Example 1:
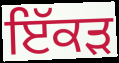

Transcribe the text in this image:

ਇੱਕੜ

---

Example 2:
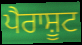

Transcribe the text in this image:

ਪੈਰਾਸ਼ੂਟ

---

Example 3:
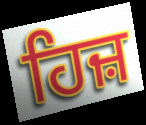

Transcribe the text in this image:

ਹਿਜ਼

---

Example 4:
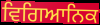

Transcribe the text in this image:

ਵਿਗਿਆਨਿਕ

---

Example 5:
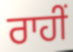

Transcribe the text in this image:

ਰਾਹੀਂ